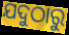
ଯଦୁଠାରୁ